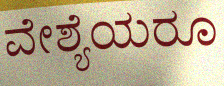
ವೇಶ್ಯೆಯರೂ